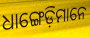
ଧାଙ୍ଗେଡ଼ିମାନେ